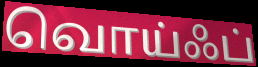
வொய்ஃப்